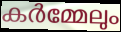
കർമ്മേലും